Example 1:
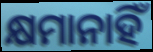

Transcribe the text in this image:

କ୍ଷମାନାହିଁ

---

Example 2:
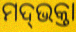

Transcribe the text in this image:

ମଦ୍‌ଭକ୍ତା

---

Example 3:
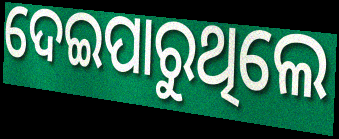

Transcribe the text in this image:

ଦେଇପାରୁଥିଲେ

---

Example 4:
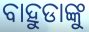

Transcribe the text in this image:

ବାହୁଡାଙ୍କୁ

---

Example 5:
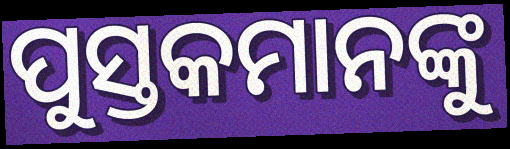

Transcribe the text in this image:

ପୁସ୍ତକମାନଙ୍କୁ